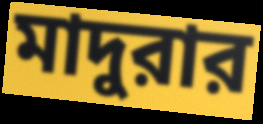
মাদুরার